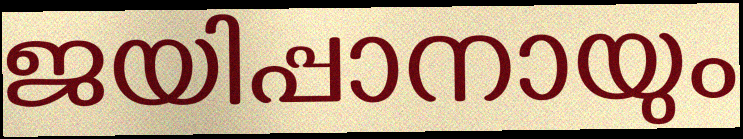
ജയിപ്പാനായും